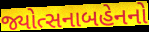
જ્યોત્સનાબહેનનો